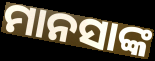
ମାନସାଙ୍କ